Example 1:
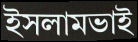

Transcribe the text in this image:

ইসলামভাই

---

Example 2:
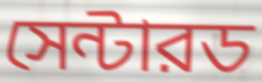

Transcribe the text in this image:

সেন্টারড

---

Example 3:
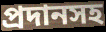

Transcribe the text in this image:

প্রদানসহ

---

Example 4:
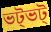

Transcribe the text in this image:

ভট্ভট্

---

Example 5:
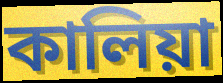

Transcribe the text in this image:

কালিয়া